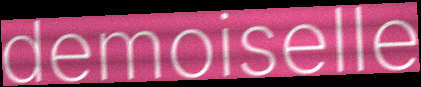
demoiselle